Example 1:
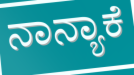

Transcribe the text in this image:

ನಾನ್ಯಾಕೆ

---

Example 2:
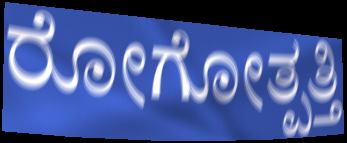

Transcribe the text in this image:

ರೋಗೋತ್ಪತ್ತಿ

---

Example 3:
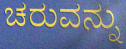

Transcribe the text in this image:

ಚರುವನ್ನು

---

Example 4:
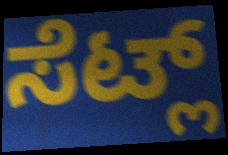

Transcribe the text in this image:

ಸೆಟ್ಲ್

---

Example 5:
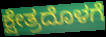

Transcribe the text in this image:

ಕ್ಷೇತ್ರದೊಳಗೆ